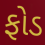
ફોડ